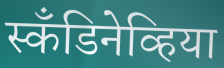
स्कँडिनेव्हिया